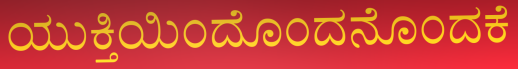
ಯುಕ್ತಿಯಿಂದೊಂದನೊಂದಕೆ